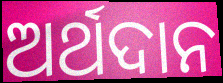
ଅର୍ଥଦାନ